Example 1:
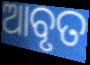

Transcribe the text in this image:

ଆବୃତ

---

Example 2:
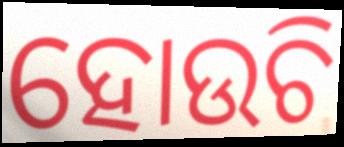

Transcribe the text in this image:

ହୋଉଚି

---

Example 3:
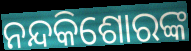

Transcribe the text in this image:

ନନ୍ଦକିଶୋରଙ୍କ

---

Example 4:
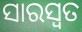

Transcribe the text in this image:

ସାରସ୍ବତ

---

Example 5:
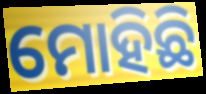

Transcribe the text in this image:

ମୋହିଛି